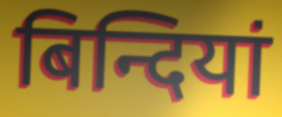
बिन्दियां